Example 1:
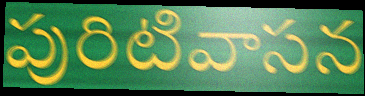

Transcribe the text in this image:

పురిటివాసన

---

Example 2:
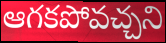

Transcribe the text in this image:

ఆగకపోవచ్చని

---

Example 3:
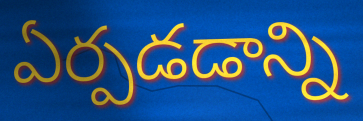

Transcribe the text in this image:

ఏర్పడడాన్ని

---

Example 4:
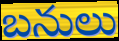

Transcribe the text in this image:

బనులు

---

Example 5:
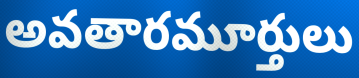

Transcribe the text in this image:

అవతారమూర్తులు